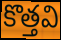
కొత్తవి